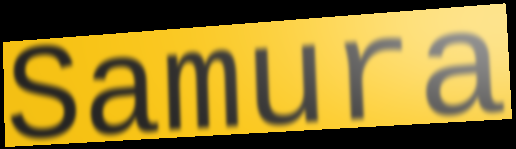
Samura